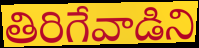
తిరిగేవాడిని